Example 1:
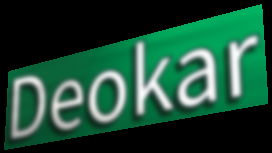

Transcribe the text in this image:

Deokar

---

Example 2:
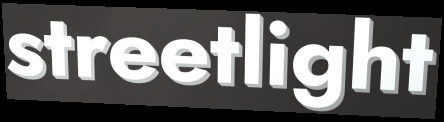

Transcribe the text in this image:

streetlight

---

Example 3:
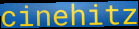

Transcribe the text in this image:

cinehitz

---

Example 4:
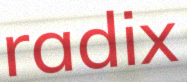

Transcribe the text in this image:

radix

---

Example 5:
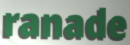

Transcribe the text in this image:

ranade